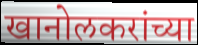
खानोलकरांच्या